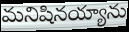
మనిషినయ్యాను